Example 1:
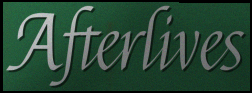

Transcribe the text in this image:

Afterlives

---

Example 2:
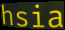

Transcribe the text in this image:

hsia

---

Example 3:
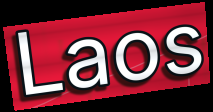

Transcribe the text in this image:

Laos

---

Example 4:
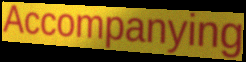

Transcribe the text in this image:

Accompanying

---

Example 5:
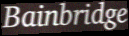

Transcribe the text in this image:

Bainbridge